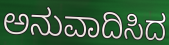
ಅನುವಾದಿಸಿದ